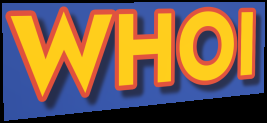
WHOI